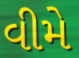
વીમે